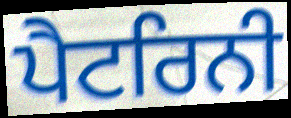
ਪੈਟਰਿਨੀ